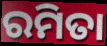
ରମିତା